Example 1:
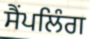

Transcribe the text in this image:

ਸੈਂਪਲਿੰਗ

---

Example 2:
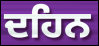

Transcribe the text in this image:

ਦਹਿਨ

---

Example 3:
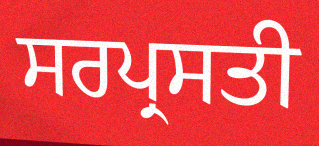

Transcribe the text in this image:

ਸਰਪ੍ਰਸਤੀ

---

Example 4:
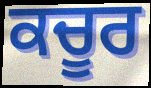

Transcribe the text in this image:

ਕਚੂਰ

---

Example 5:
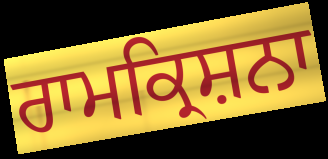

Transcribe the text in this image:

ਰਾਮਕ੍ਰਿਸ਼ਨਾ